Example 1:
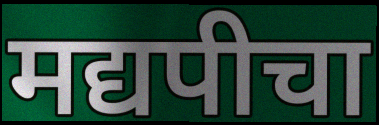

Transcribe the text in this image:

मद्यपीचा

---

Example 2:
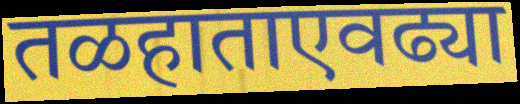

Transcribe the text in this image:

तळहाताएवढ्या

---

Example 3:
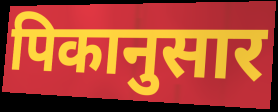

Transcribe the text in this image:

पिकानुसार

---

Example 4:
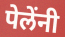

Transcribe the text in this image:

पेलेंनी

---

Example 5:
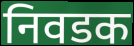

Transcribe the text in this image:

निवडक